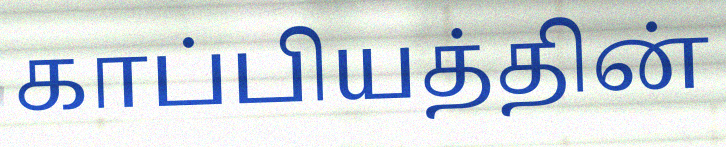
காப்பியத்தின்